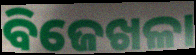
ବିଜେଖଳା